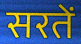
सरतें